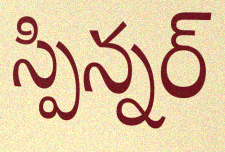
స్పిన్నర్